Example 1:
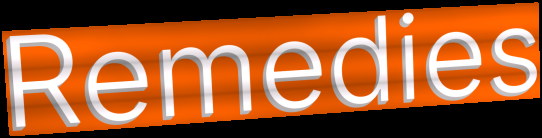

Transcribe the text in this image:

Remedies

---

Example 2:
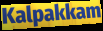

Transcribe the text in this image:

Kalpakkam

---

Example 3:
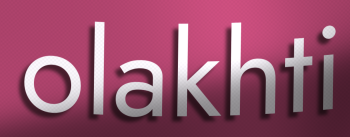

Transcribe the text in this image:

olakhti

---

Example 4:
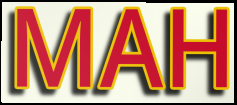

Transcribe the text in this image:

MAH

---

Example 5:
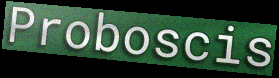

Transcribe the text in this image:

Proboscis